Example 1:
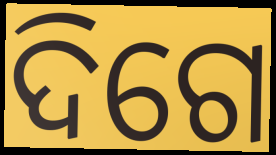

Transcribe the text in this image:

ଦିଗେ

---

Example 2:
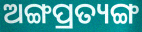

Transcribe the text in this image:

ଅଙ୍ଗପ୍ରତ୍ୟଙ୍ଗ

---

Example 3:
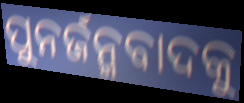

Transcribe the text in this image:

ପୁନର୍ଜନ୍ମବାଦକୁ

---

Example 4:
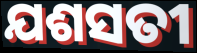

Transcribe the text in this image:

ଯଶସତୀ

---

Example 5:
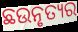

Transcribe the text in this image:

ଛଉନୃତ୍ୟର